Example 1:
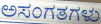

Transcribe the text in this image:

ಅಸಂಗತಗಳು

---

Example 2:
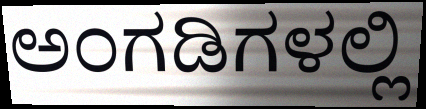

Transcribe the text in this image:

ಅಂಗಡಿಗಳಲ್ಲಿ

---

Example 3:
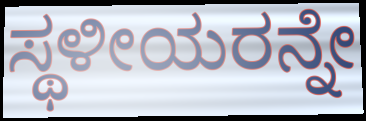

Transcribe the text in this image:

ಸ್ಥಳೀಯರನ್ನೇ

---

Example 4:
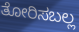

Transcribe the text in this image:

ತೋರಿಸಬಲ್ಲ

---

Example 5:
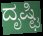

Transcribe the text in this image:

ದೃಷ್ಟಿ